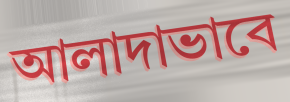
আলাদাভাবে